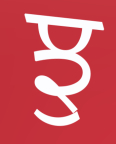
ਝੁ